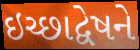
ઇચ્છાદ્વેષને